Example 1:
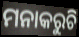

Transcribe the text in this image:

ମନାକରୁଚି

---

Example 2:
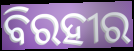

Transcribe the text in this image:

ବିରହୀର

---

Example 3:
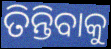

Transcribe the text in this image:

ତିନ୍ତିବାକୁ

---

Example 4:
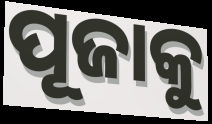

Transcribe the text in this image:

ପୂଜାକୁ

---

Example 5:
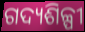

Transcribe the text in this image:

ଗଦ୍ୟଶିଳ୍ପୀ